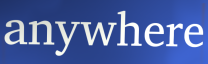
anywhere